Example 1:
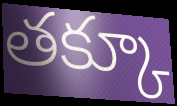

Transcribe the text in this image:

తక్కూ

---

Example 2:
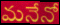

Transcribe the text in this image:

మనేనో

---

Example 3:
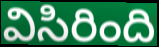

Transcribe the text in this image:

విసిరింది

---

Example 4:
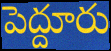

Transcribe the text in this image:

పెద్దూరు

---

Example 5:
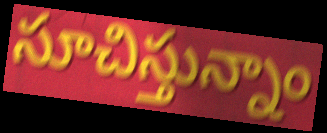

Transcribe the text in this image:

సూచిస్తున్నాం